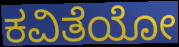
ಕವಿತೆಯೋ